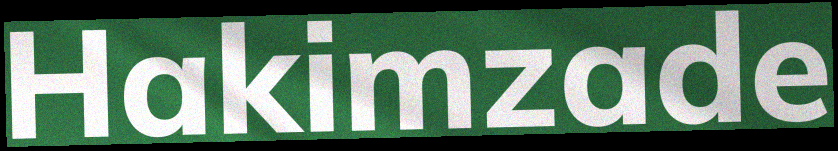
Hakimzade